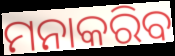
ମନାକରିବ